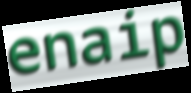
enaip